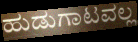
ಹುಡುಗಾಟವಲ್ಲ